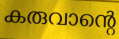
കരുവാന്റെ